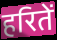
हरितें